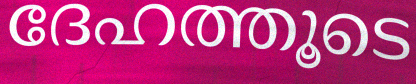
ദേഹത്തൂടെ